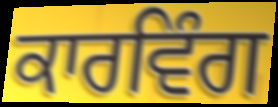
ਕਾਰਵਿੰਗ